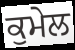
ਕੁਮੇਲ